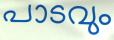
പാടവും